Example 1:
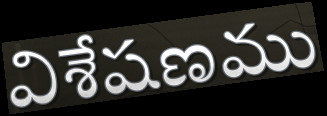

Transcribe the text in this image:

విశేషణము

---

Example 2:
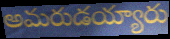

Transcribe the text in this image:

అమరుడయ్యారు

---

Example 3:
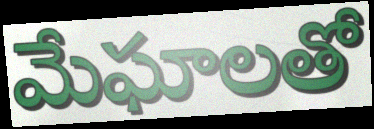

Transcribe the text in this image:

మేఘాలతో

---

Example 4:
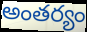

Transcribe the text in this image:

అంతర్యం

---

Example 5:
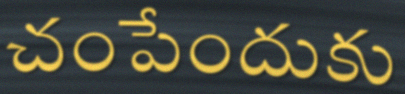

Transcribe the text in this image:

చంపేందుకు